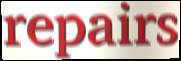
repairs